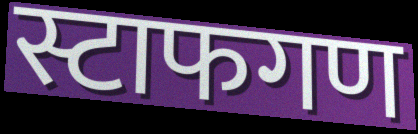
स्टाफगण